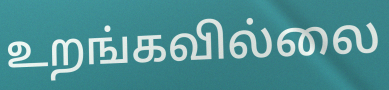
உறங்கவில்லை